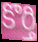
కొర్తి